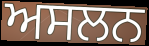
ਅਸਲਨ